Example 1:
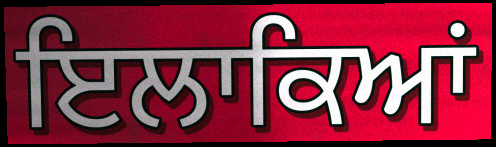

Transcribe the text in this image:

ਇਲਾਕਿਆਂ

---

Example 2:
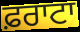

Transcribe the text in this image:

ਫ਼ਰਾਟਾ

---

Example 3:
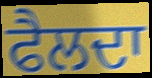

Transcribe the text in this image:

ਫੈਲਦਾ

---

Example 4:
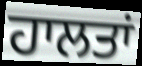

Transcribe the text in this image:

ਹਾਲਤਾਂ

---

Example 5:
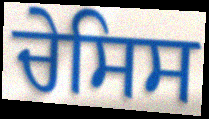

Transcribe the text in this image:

ਚੇਸਿਸ